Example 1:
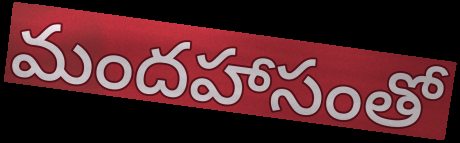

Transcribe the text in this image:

మందహాసంతో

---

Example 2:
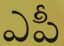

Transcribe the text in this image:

ఎపీ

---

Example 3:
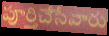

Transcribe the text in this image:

పూర్తిచేసేవారు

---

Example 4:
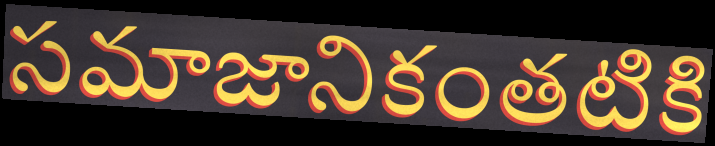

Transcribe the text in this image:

సమాజానికంతటికి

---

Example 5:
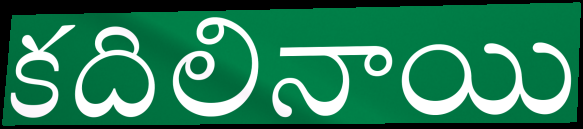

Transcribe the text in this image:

కదిలినాయి